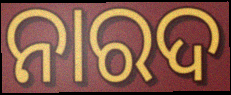
ନାରଦ